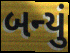
બન્યું